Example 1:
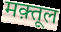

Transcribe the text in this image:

मक़्तूल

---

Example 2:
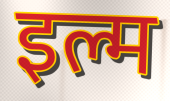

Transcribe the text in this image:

इल्म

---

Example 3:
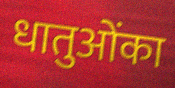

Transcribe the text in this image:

धातुओंका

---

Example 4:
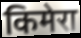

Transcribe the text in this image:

किमेरा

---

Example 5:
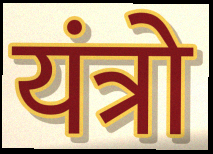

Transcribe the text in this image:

यंत्रो